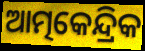
ଆତ୍ମକେନ୍ଦ୍ରିକ